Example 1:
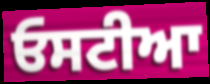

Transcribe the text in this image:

ਓਸਟੀਆ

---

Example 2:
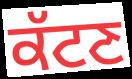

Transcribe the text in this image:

ਕੱਟਣ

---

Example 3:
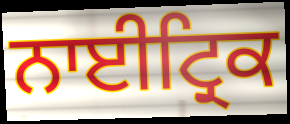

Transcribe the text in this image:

ਨਾਈਟ੍ਰਿਕ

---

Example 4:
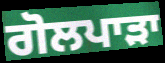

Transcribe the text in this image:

ਗੋਲਪਾੜਾ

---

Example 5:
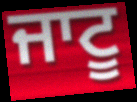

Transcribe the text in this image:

ਜਾਟੂ